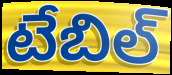
టేబిల్